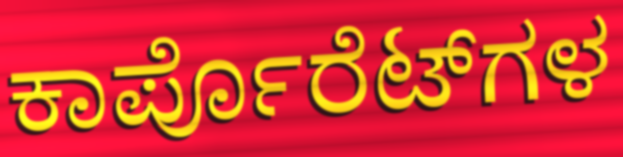
ಕಾರ್ಪೊರೆಟ್‌ಗಳ